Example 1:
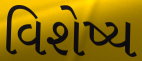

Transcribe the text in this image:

વિશેષ્ય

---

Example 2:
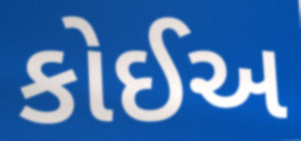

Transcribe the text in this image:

કોઈઅ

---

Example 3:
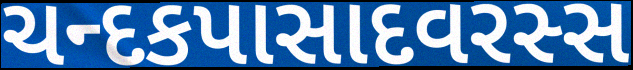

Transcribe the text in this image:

ચન્દકપાસાદવરસ્સ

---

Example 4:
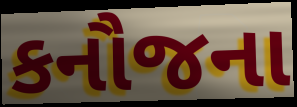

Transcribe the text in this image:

કનૌજના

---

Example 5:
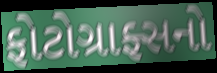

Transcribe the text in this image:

ફોટોગ્રાફ્સનો